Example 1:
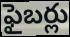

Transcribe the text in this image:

ఫైబర్లు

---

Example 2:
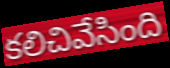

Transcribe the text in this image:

కలిచివేసింది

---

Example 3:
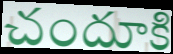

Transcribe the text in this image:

చందూకి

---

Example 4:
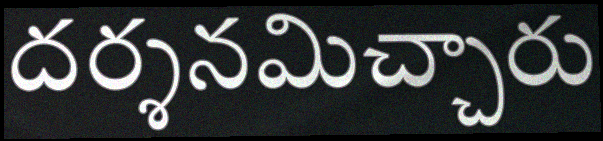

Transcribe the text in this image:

దర్శనమిచ్చారు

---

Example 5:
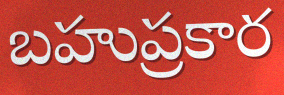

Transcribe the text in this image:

బహుప్రకార